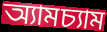
অ্যামচ্যাম